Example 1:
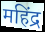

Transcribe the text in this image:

महिंद्र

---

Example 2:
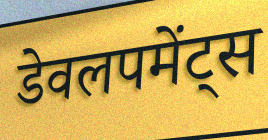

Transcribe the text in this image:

डेवलपमेंट्स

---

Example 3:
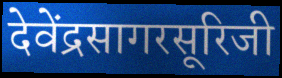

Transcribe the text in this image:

देवेंद्रसागरसूरिजी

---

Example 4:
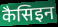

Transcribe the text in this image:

कैसिइन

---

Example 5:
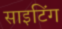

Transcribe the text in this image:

साइटिंग